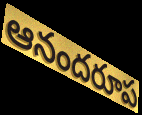
ఆనందరూప